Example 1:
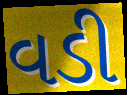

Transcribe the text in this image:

વડી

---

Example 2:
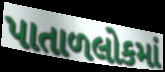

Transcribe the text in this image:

પાતાળલોકમાં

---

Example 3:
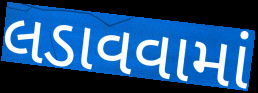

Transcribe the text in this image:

લડાવવામાં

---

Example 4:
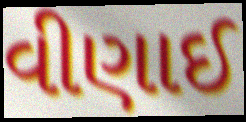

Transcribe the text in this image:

વીણાઈ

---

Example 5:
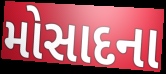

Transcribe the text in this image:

મોસાદના